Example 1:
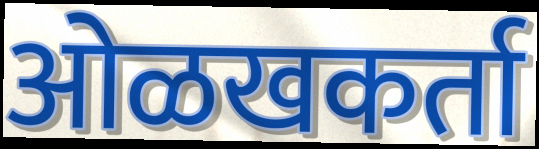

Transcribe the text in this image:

ओळखकर्ता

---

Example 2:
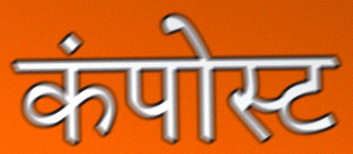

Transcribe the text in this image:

कंपोस्ट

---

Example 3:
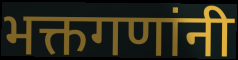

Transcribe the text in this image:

भक्तगणांनी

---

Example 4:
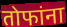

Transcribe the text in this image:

तोफांना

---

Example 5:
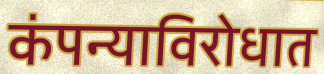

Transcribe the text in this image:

कंपन्याविरोधात